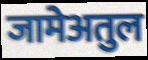
जामेअतुल